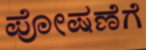
ಪೋಷಣೆಗೆ